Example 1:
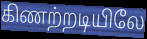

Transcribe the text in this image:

கிணற்றடியிலே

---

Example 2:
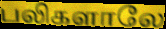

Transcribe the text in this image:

பலிகளாலே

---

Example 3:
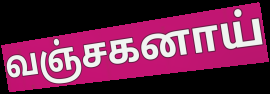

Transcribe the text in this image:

வஞ்சகனாய்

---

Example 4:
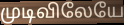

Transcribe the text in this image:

முடிவிலேயே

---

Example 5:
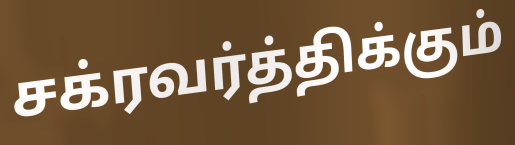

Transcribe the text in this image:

சக்ரவர்த்திக்கும்